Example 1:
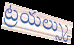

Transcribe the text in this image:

ట్రయల్స్కు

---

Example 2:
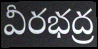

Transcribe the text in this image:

వీరభద్ర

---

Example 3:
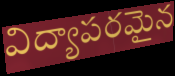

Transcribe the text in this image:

విద్యాపరమైన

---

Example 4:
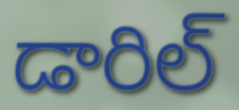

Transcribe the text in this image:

డారిల్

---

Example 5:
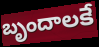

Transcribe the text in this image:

బృందాలకే